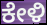
ಕೇಳಿ